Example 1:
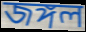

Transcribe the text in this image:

জঙ্গল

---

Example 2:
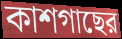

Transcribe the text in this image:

কাশগাছের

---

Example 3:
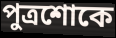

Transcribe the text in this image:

পুত্রশোকে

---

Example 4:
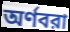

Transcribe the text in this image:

অর্ণবরা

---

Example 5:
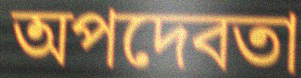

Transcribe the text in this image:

অপদেবতা